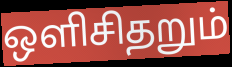
ஒளிசிதறும்